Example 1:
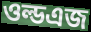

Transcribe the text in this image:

ওল্ডএজ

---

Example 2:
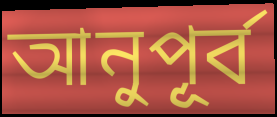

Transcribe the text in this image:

আনুপূর্ব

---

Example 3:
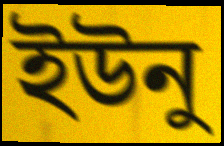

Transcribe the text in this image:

ইউনু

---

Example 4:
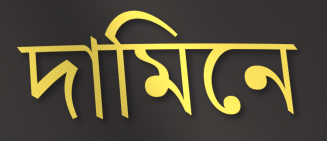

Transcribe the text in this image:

দামিনে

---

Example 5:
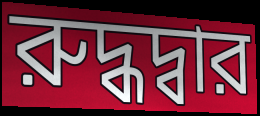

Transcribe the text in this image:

রুদ্ধদ্বার